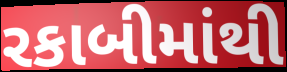
રકાબીમાંથી